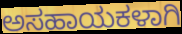
ಅಸಹಾಯಕಳಾಗಿ